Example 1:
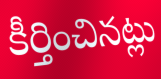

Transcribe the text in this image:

కీర్తించినట్లు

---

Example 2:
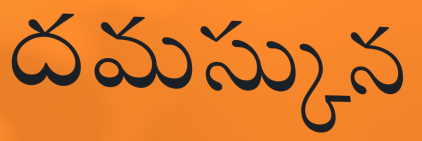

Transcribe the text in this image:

దమస్కున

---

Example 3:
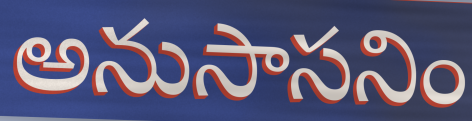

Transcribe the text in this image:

అనుసాసనిం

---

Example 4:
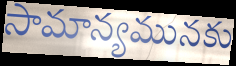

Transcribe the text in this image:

సామాన్యమునకు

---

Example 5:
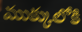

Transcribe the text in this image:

ముక్కులోకి